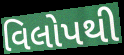
વિલોપથી